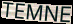
TEMNE